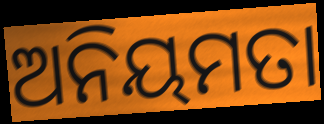
ଅନିୟମତା